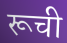
रूची